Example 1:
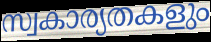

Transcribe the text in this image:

സ്വകാര്യതകളും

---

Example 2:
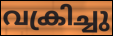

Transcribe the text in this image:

വക്രിച്ചു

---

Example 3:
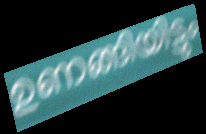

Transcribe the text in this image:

ഉണങ്ങിയിട്ടും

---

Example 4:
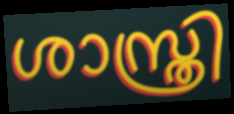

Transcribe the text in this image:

ശാസ്ത്രി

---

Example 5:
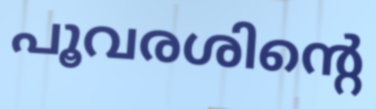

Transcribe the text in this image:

പൂവരശിന്റെ